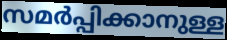
സമർപ്പിക്കാനുള്ള